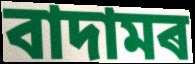
বাদামৰ